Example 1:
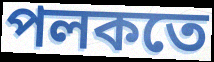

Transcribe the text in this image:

পলকতে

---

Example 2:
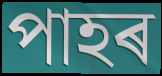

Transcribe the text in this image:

পাহৰ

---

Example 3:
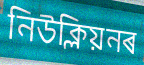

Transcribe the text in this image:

নিউক্লিয়নৰ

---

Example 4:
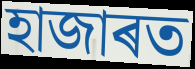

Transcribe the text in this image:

হাজাৰত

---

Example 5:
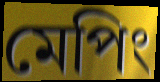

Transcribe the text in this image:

মেপিং